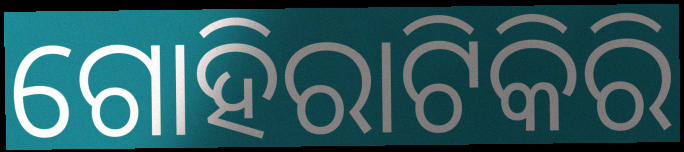
ଗୋହିରାଟିକିରି